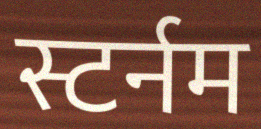
स्टर्नम